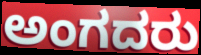
ಅಂಗದರು